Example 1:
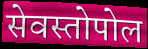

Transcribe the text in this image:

सेवस्तोपोल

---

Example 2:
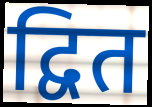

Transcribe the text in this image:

द्वित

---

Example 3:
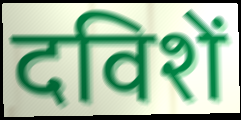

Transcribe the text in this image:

दविशें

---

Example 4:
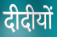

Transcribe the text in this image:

दीदीयों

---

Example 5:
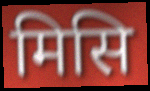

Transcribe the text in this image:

मिसि